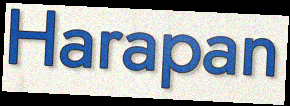
Harapan